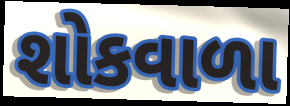
શોકવાળા